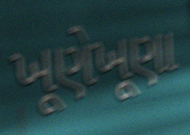
ખૂણેખૂણા